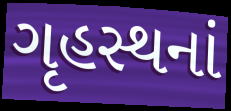
ગૃહસ્થનાં